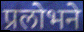
प्रलोभने